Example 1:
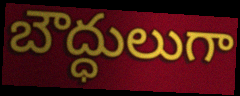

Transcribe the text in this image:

బౌద్ధులుగా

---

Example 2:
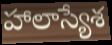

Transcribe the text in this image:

హాలాస్యేశ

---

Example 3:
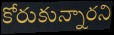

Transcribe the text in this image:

కోరుకున్నారని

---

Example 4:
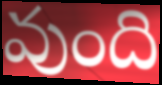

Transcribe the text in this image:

వుంది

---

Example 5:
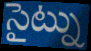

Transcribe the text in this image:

సైట్ను